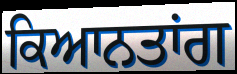
ਕਿਆਨਤਾਂਗ